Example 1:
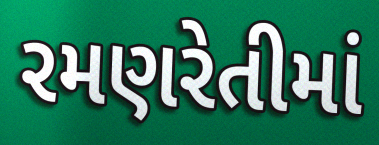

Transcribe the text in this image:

રમણરેતીમાં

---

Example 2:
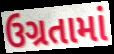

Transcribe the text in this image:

ઉગ્રતામાં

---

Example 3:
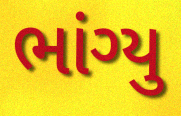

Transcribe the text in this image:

ભાંગ્યુ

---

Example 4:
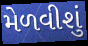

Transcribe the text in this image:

મેળવીશું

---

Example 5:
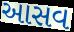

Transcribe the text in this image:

આસવ